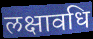
लक्षावधि